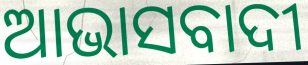
ଆଭାସବାଦୀ